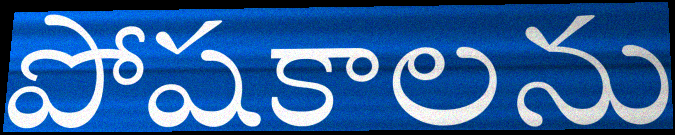
పోషకాలను